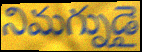
నిమగ్నుడై